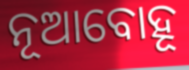
ନୂଆବୋହୂ